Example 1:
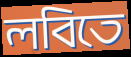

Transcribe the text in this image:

লবিতে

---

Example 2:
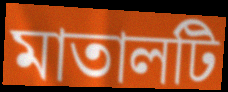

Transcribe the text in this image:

মাতালটি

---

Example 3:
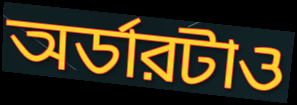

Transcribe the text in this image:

অর্ডারটাও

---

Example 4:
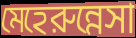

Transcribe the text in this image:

মেহেরুন্নেসা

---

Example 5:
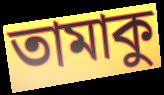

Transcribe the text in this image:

তামাকু